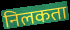
निलकता